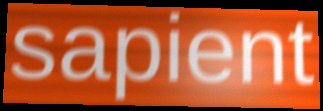
sapient